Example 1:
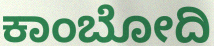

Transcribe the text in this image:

ಕಾಂಬೋದಿ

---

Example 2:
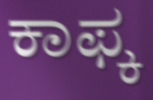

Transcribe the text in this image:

ಕಾಫ್ಕ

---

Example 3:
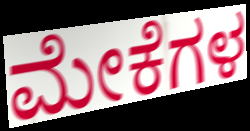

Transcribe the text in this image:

ಮೇಕೆಗಳ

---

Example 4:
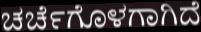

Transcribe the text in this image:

ಚರ್ಚೆಗೊಳಗಾಗಿದೆ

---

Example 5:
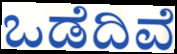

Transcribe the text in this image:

ಒಡೆದಿವೆ